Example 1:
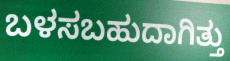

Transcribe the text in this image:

ಬಳಸಬಹುದಾಗಿತ್ತು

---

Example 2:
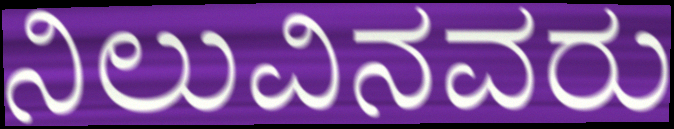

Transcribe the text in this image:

ನಿಲುವಿನವರು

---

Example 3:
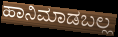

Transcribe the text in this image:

ಹಾನಿಮಾಡಬಲ್ಲ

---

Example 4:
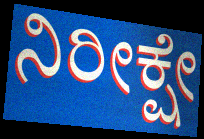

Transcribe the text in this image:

ನಿರೀಕ್ಷೇ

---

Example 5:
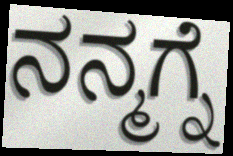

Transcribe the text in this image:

ನನ್ಮಗ್ನೆ